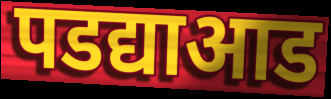
पडद्याआड